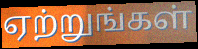
ஏற்றுங்கள்